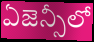
ఏజెన్సీలో